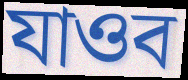
যাওব